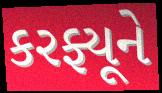
કરફ્યૂને